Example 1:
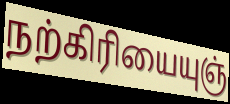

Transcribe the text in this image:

நற்கிரியையுஞ்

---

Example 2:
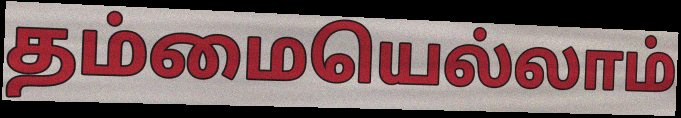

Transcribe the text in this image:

தம்மையெல்லாம்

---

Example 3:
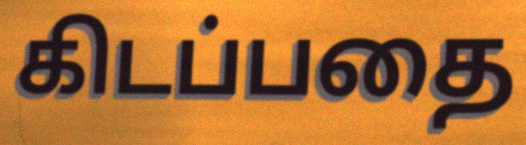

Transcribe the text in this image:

கிடப்பதை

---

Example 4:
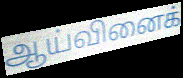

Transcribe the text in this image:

ஆய்வினைக்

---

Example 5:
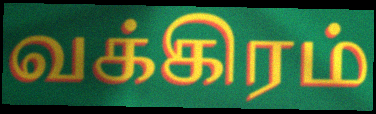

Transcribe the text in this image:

வக்கிரம்